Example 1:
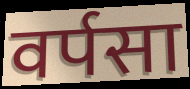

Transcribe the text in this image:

वर्पसा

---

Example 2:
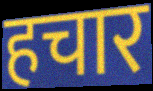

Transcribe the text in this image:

हचार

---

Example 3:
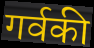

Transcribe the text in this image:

गर्वकी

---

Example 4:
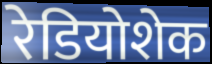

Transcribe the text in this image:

रेडियोशेक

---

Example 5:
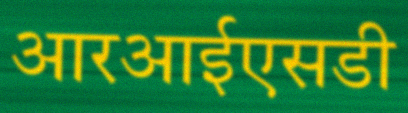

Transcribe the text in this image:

आरआईएसडी